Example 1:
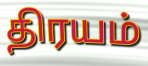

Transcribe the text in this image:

திரயம்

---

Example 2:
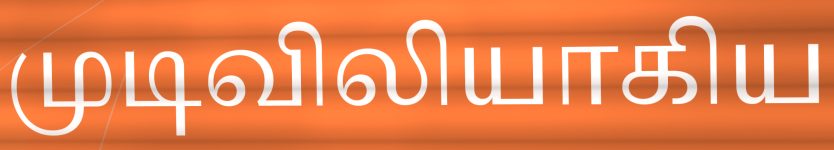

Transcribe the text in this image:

முடிவிலியாகிய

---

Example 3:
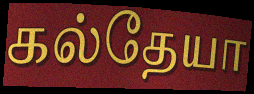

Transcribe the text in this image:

கல்தேயா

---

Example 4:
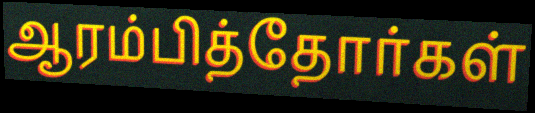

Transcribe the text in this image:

ஆரம்பித்தோர்கள்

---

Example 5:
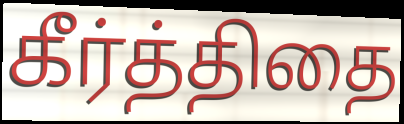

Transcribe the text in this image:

கீர்த்திதை